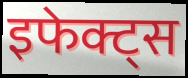
इफेक्ट्स